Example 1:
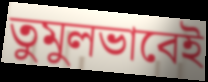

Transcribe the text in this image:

তুমুলভাবেই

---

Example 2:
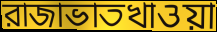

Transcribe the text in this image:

রাজাভাতখাওয়া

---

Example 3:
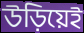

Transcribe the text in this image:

উড়িয়েই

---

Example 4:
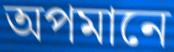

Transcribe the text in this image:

অপমানে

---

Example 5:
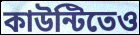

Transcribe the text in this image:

কাউন্টিতেও